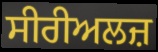
ਸੀਰੀਅਲਜ਼